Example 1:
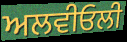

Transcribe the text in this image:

ਅਲਵੀਓਲੀ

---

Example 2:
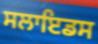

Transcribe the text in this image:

ਸਲਾਇਡਸ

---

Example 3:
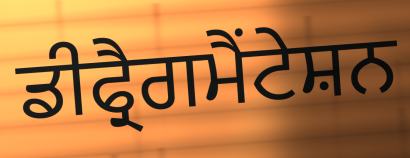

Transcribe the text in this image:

ਡੀਫ੍ਰੈਗਮੈਂਟੇਸ਼ਨ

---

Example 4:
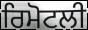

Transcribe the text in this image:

ਰਿਮੋਟਲੀ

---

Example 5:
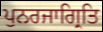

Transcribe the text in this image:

ਪੁਨਰਜਾਗ੍ਰਿਤਿ